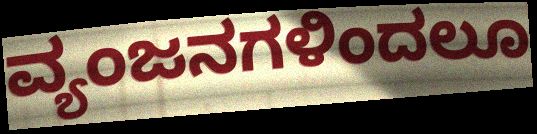
ವ್ಯಂಜನಗಳಿಂದಲೂ